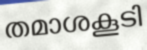
തമാശകൂടി